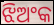
ଝିଅଂକ